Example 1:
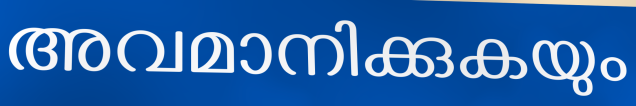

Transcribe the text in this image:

അവമാനിക്കുകയും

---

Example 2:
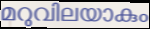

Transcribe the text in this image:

മറുവിലയാകും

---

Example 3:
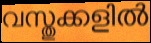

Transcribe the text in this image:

വസ്തുക്കളിൽ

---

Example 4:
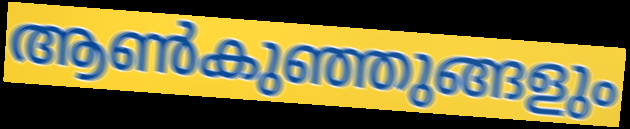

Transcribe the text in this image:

ആൺകുഞ്ഞുങ്ങളും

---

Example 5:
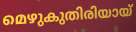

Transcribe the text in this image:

മെഴുകുതിരിയായ്